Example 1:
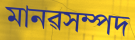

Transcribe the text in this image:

মানৱসম্পদ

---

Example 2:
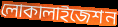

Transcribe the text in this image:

লোকালাইজেশন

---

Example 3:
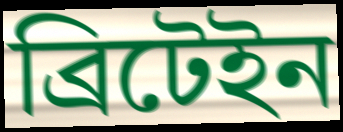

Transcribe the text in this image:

ব্ৰিটেইন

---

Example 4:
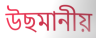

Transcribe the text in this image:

উছমানীয়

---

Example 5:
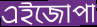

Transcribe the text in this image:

এইজোপা